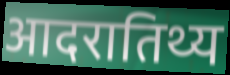
आदरातिथ्य